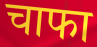
चाफा